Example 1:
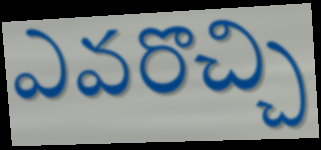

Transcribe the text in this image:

ఎవరొచ్చి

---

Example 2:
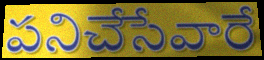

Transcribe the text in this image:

పనిచేసేవారే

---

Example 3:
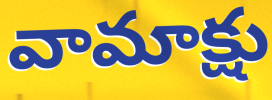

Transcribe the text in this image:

వామాక్షు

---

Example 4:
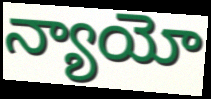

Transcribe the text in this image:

న్యాయో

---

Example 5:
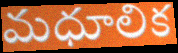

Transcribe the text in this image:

మధూలిక